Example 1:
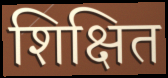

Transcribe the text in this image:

शिक्षित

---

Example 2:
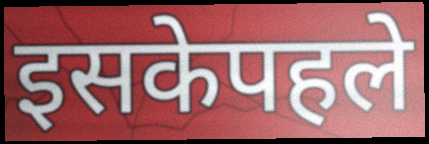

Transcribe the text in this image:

इसकेपहले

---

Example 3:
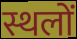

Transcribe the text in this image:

स्थलों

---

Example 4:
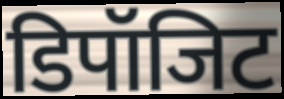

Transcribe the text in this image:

डिपॉजिट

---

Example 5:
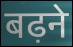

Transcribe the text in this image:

बढ़ने